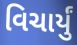
વિચાર્યું